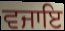
ਵਜਾਇ